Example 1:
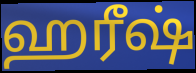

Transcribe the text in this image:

ஹரீஷ்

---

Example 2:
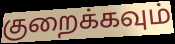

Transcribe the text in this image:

குறைக்கவும்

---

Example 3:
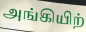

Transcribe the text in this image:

அங்கியிற்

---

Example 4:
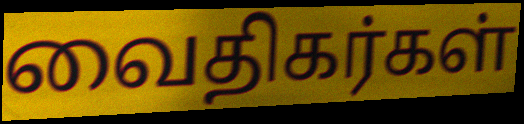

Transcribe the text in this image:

வைதிகர்கள்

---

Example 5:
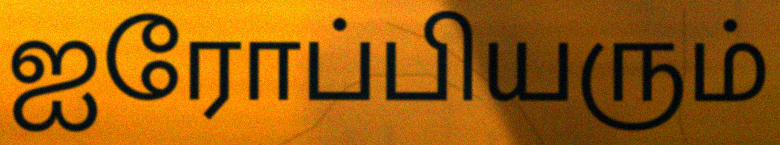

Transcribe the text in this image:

ஐரோப்பியரும்